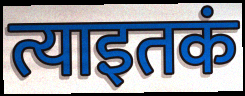
त्याइतकं